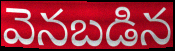
వెనబడిన